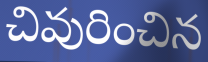
చివురించిన